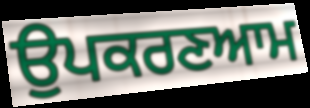
ਉਪਕਰਣਆਮ